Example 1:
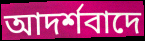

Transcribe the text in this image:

আদর্শবাদে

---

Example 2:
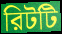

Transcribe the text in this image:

রিটটি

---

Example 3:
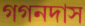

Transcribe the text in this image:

গগনদাস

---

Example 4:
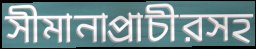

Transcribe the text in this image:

সীমানাপ্রাচীরসহ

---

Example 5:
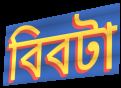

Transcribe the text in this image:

বিবটা